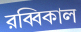
রব্বিকাল